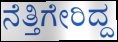
ನೆತ್ತಿಗೇರಿದ್ದ